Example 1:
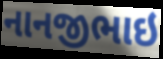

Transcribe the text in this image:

નાનજીભાઇ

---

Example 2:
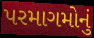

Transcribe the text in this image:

પરમાગમોનું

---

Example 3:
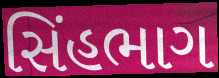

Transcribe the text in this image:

સિંહભાગ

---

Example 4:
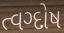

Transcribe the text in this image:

ત્વગ્દોષ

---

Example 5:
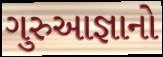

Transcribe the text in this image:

ગુરુઆજ્ઞાનો